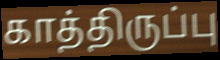
காத்திருப்பு